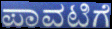
ಪಾವಟಿಗೆ